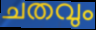
ചതവും